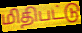
மிதிபட்டு